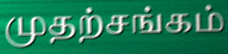
முதற்சங்கம்